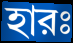
হারঃ